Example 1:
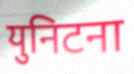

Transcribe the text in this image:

युनिटना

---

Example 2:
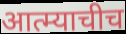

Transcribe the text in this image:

आत्म्याचीच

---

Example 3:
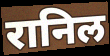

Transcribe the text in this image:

रानिल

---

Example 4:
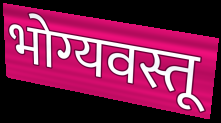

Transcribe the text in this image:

भोग्यवस्तू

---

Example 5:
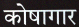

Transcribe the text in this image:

कोषागार